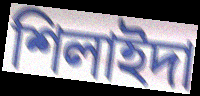
শিলাইদা